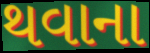
થવાના